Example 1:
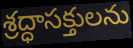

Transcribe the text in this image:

శ్రద్ధాసక్తులను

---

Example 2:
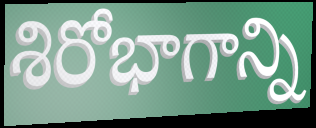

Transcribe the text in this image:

శిరోభాగాన్ని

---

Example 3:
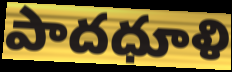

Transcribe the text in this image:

పాదధూళి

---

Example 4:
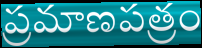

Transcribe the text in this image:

ప్రమాణపత్రం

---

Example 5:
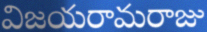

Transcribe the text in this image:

విజయరామరాజు